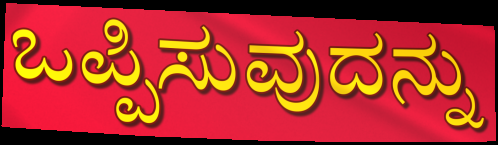
ಒಪ್ಪಿಸುವುದನ್ನು